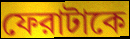
ফেরাটাকে